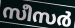
സീസർ